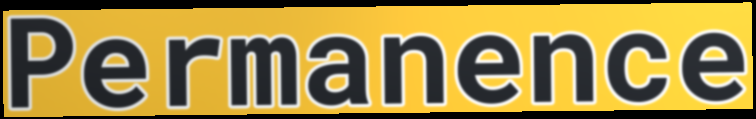
Permanence